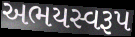
અભયસ્વરૂપ